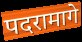
पदरामागे